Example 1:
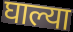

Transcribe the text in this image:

घाल्या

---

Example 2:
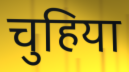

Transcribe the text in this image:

चुहिया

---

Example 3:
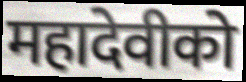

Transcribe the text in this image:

महादेवीको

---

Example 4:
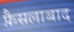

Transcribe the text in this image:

फ़ैसलाबाद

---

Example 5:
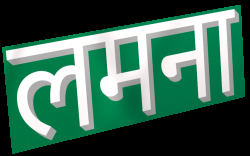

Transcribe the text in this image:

लमना